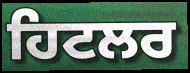
ਹਿਟਲਰ